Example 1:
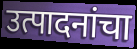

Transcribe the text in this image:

उत्पादनांचा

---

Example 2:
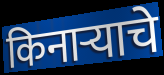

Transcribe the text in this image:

किनाऱ्याचे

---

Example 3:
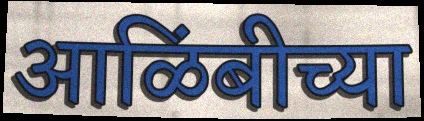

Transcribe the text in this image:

आळिंबीच्या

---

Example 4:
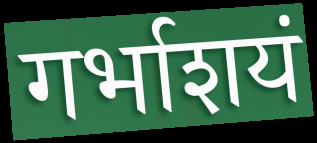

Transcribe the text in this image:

गर्भाशयं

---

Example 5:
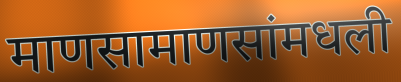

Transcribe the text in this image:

माणसामाणसांमधली